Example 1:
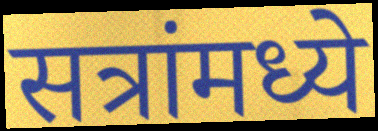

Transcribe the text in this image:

सत्रांमध्ये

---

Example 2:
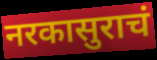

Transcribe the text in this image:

नरकासुराचं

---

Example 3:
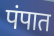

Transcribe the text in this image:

पंपात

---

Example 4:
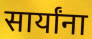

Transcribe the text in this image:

सार्यांना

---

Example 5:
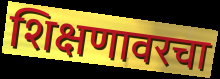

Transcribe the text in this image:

शिक्षणावरचा